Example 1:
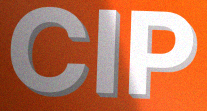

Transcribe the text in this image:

CIP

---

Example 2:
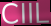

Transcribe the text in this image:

CIIL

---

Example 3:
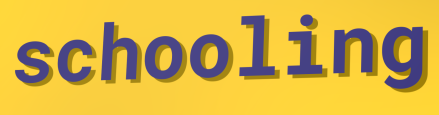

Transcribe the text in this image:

schooling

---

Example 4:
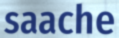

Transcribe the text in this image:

saache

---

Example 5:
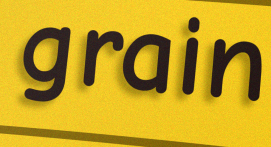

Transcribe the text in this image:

grain